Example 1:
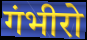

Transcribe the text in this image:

गंभीरो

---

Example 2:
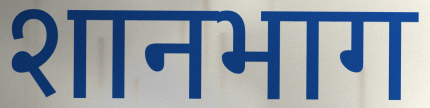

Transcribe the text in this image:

शानभाग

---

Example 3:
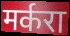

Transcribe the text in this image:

मर्करा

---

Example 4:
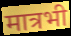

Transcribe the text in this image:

मात्रभी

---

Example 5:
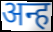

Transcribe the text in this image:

अन्ह